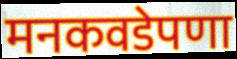
मनकवडेपणा